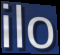
ilo